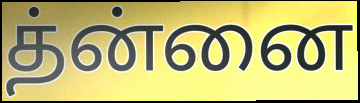
த்ன்னை